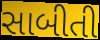
સાબીતી